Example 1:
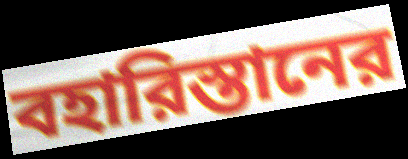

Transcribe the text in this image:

বহারিস্তানের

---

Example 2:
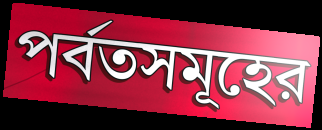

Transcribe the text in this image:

পর্বতসমূহের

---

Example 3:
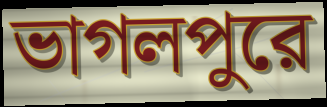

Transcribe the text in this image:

ভাগলপুরে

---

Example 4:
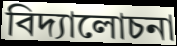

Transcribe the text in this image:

বিদ্যালোচনা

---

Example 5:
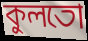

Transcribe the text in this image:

কুলতো